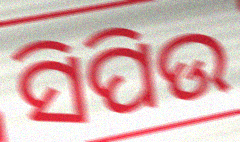
ସିପିଉ